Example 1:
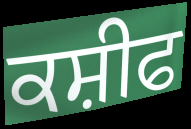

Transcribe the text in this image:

ਕਸ਼ੀਫ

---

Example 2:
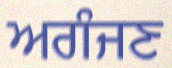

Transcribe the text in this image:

ਅਗੰਜਣ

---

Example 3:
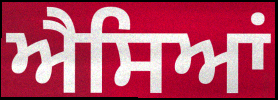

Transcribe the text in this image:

ਐਸਿਆਂ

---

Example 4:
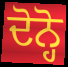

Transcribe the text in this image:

ਦੋਨ੍ਹੋ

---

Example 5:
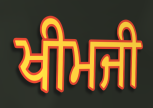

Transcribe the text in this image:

ਖੀਮਜੀ